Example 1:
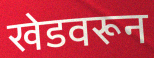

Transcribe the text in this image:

खेडवरून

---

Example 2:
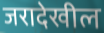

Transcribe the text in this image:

जरादेखील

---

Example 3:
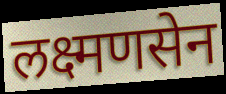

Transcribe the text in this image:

लक्ष्मणसेन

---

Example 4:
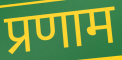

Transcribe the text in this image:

प्रणाम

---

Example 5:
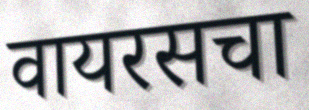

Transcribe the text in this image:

वायरसचा